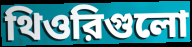
থিওরিগুলো